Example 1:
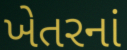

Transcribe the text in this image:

ખેતરનાં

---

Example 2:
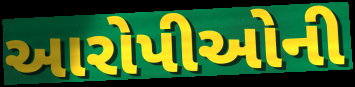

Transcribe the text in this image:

આરોપીઓની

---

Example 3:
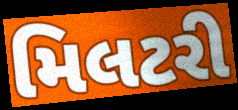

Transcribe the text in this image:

મિલટરી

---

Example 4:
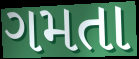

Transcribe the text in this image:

ગમતા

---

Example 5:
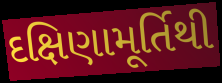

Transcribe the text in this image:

દક્ષિણામૂર્તિથી